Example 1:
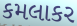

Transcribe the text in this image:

કમલાકર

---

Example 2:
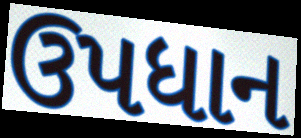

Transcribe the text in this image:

ઉપધાન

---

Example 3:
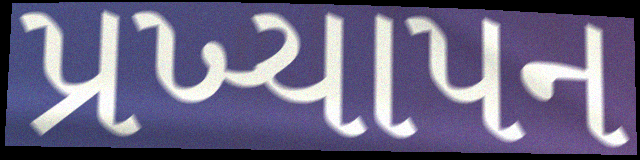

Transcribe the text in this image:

પ્રખ્યાપન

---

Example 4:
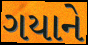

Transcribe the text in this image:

ગયાને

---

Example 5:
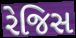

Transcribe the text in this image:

રેજિસ